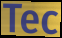
Tec